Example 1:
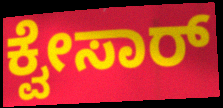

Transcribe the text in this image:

ಕ್ವೇಸಾರ್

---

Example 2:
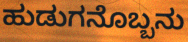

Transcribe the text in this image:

ಹುಡುಗನೊಬ್ಬನು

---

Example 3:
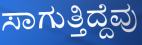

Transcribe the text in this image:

ಸಾಗುತ್ತಿದ್ದೆವು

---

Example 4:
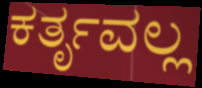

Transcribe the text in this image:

ಕರ್ತೃವಲ್ಲ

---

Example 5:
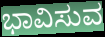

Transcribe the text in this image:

ಭಾವಿಸುವ